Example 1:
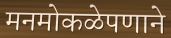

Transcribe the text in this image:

मनमोकळेपणाने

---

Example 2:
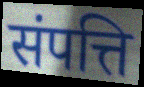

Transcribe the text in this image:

संपत्ति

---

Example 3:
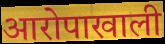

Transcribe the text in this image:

आरोपाखाली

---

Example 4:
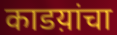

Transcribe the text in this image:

काडय़ांचा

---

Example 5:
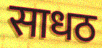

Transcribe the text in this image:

साधठ